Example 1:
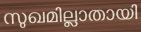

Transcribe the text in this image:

സുഖമില്ലാതായി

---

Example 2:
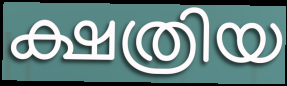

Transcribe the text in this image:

ക്ഷത്രിയ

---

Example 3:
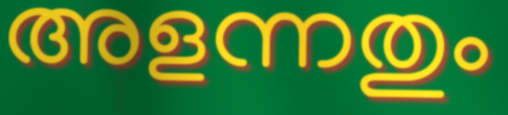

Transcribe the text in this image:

അളന്നതും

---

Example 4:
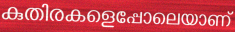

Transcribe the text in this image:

കുതിരകളെപ്പോലെയാണ്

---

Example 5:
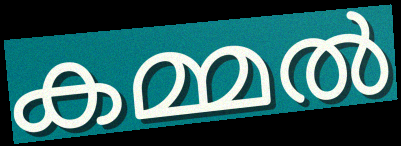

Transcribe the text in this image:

കമ്മൽ